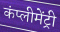
कंप्लीमेंट्री